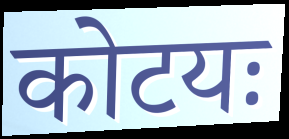
कोटयः